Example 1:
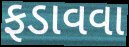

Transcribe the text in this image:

ફડાવવા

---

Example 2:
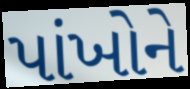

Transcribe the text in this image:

પાંખોને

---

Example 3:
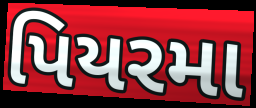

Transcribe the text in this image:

પિયરમા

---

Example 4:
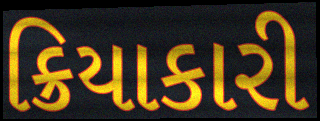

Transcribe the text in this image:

ક્રિયાકારી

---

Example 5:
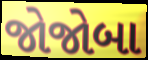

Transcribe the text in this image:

જોજોબા